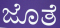
ಜೊತೆ